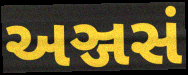
અઞ્જસં